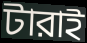
টারাই